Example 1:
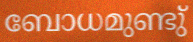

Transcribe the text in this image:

ബോധമുണ്ടു്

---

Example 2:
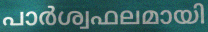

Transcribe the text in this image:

പാർശ്വഫലമായി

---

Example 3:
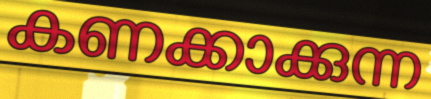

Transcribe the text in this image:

കണക്കാക്കുന്ന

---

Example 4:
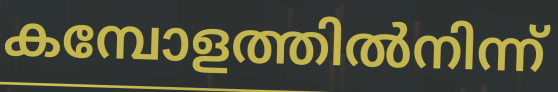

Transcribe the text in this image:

കമ്പോളത്തിൽനിന്ന്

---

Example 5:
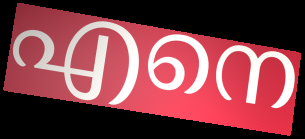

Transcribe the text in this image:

എനെ